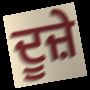
ਦੂਜ਼ੇ